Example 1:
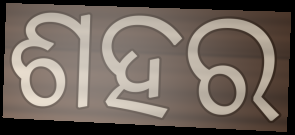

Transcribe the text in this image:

ଶହର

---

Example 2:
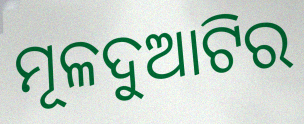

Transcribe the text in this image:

ମୂଳଦୁଆଟିର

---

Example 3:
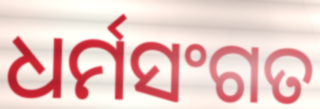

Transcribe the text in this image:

ଧର୍ମସଂଗତ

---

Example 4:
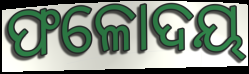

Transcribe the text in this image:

ଫଳୋଦୟ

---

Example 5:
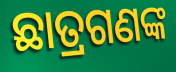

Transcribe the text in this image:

ଛାତ୍ରଗଣଙ୍କ